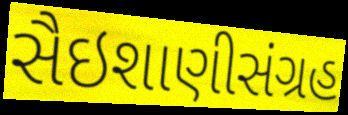
સૈઇશાણીસંગ્રહ